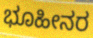
ಭೂಹೀನರ